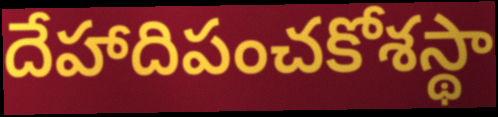
దేహాదిపంచకోశస్థా